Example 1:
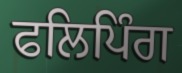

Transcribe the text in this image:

ਫਲਿਪਿੰਗ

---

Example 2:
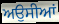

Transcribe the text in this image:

ਅਉਸੀਆਂ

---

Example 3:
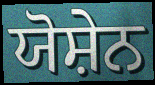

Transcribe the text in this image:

ਯੋਸ਼ੇਨ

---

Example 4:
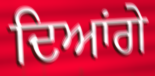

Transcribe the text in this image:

ਦਿਆਂਗੇ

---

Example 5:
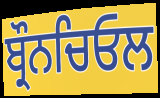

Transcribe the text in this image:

ਬ੍ਰੌਨਚਿਓਲ